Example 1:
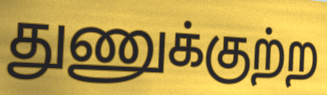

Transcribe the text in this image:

துணுக்குற்ற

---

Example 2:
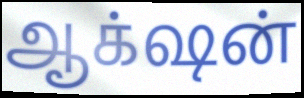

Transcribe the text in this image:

ஆக்‌ஷன்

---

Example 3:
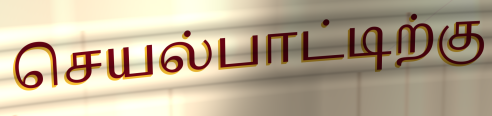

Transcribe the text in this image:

செயல்பாட்டிற்கு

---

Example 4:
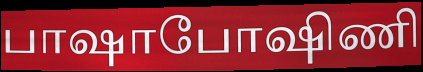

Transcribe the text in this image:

பாஷாபோஷிணி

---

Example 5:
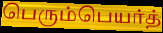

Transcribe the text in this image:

பெரும்பெயர்த்